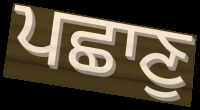
ਪਛਾਣੁ